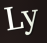
Ly